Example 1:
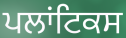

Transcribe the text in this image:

ਪਲਾਂਟਿਕਸ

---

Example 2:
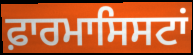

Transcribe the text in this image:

ਫ਼ਾਰਮਾਸਿਸਟਾਂ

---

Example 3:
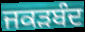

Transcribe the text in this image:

ਜਕੜਬੰਦ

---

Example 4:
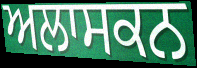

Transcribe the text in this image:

ਅਲਾਸਕਨ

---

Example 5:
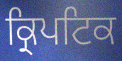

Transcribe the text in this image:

ਕ੍ਰਿਪਟਿਕ